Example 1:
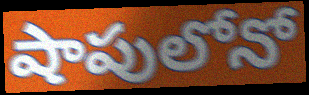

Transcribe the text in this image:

షాపులోనో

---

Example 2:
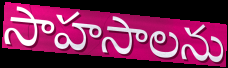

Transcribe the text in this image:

సాహసాలను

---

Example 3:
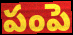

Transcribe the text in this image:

పంపె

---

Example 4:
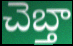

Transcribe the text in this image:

చెబ్తా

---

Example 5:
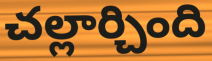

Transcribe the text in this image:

చల్లార్చింది